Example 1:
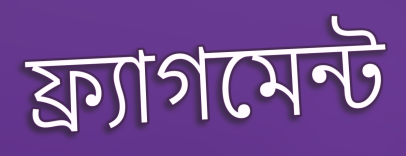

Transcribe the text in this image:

ফ্র্যাগমেন্ট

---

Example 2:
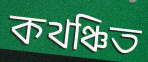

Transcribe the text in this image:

কথঞ্চিত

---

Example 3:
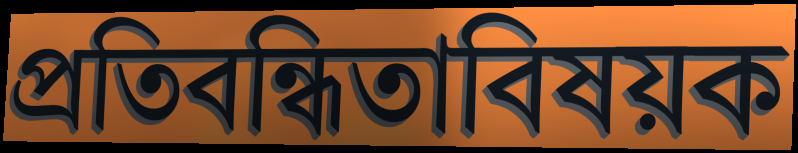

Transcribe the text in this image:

প্রতিবন্ধিতাবিষয়ক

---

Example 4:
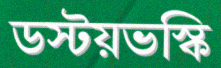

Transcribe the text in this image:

ডস্টয়ভস্কি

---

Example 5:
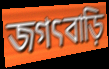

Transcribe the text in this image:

জগৎবাড়ি